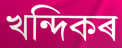
খন্দিকৰ